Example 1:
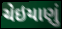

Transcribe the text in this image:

ચેઇયાણું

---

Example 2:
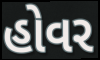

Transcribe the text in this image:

હોવર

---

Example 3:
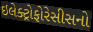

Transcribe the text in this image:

ઇલેક્ટ્રોફોરેસીસનો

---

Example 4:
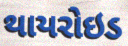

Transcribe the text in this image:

થાયરોઇડ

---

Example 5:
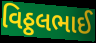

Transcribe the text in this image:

વિઠ્ઠલભાઈ